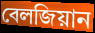
বেলজিয়ান